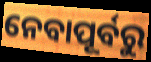
ନେବାପୂର୍ବରୁ